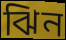
ঝিন